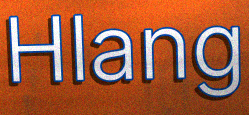
Hlang